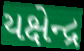
યક્ષેન્દ્ર